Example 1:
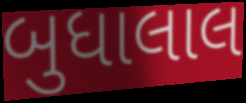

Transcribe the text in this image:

બુધાલાલ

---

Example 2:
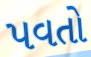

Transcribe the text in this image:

પવતો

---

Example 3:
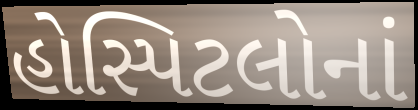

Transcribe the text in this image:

હોસ્પિટલોનાં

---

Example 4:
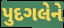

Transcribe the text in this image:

પુદગલેને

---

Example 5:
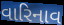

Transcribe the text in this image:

વારિનાવ